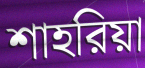
শাহরিয়া